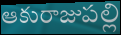
ఆకురాజుపల్లి